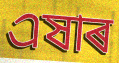
এষাৰ